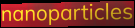
nanoparticles